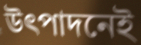
উৎপাদনেই